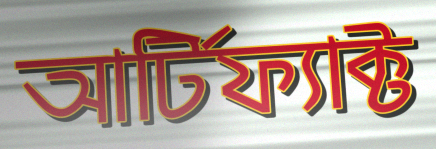
আর্টিফ্যাক্ট